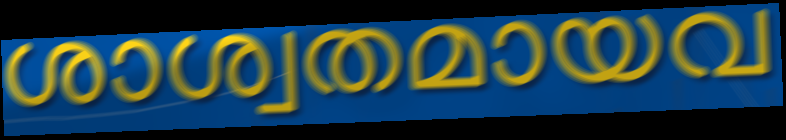
ശാശ്വതമായവ